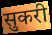
सुकरी